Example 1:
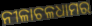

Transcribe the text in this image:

ନୀଳାଚଳଧାମର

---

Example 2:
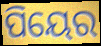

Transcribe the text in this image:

ପିୟେର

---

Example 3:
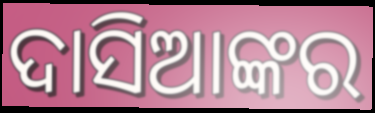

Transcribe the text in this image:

ଦାସିଆଙ୍କର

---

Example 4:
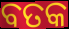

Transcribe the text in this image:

ବତକ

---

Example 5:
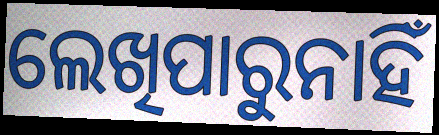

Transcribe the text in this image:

ଲେଖିପାରୁନାହିଁ